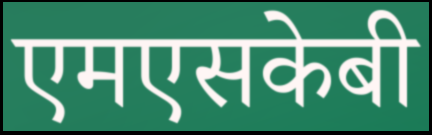
एमएसकेबी